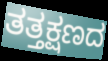
ತತ್ತಕ್ಷಣದ